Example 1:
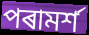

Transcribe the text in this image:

পৰামৰ্শ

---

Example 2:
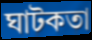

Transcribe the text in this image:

ঘাটকতা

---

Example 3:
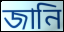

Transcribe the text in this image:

জানি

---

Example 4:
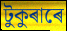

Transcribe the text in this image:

টুকুৰাৰে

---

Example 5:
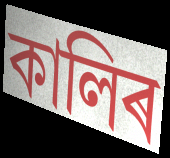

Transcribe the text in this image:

কালিৰ